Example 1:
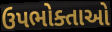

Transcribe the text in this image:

ઉપભોક્તાઓ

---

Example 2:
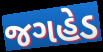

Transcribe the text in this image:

જગહેડ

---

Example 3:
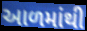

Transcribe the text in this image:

આળમાંથી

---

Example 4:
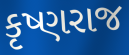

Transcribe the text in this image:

કૃષ્ણરાજ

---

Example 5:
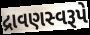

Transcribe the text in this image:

દ્રાવણસ્વરૂપે